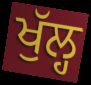
ਖੁੱਲ੍ਹ